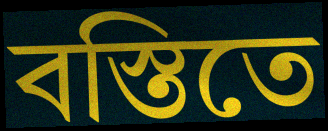
বস্তিতে